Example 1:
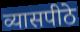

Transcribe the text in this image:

व्यासपीठे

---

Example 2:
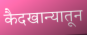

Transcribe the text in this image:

कैदखान्यातून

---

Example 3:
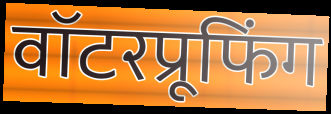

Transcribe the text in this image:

वॉटरप्रूफिंग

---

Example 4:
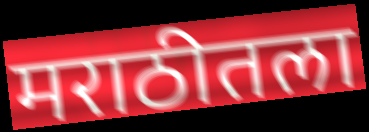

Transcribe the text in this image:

मराठीतला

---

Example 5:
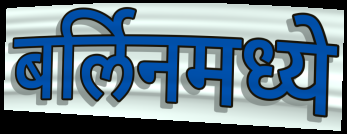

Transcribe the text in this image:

बर्लिनमध्ये